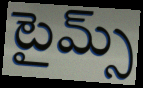
టైమ్స్